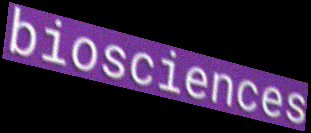
biosciences